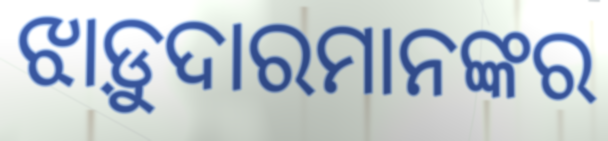
ଝାଡ଼ୁଦାରମାନଙ୍କର